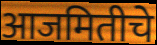
आजमितीचे